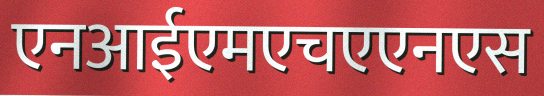
एनआईएमएचएएनएस